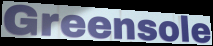
Greensole